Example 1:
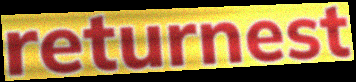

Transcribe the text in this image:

returnest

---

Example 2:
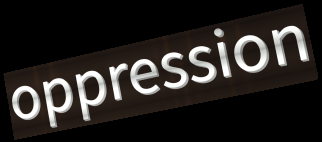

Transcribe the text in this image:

oppression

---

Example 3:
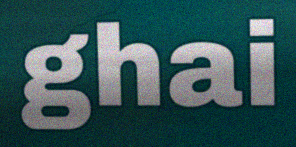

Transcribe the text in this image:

ghai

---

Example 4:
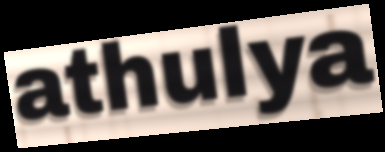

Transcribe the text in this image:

athulya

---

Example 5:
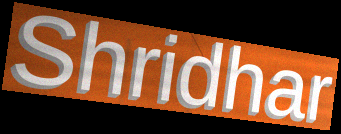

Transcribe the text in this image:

Shridhar